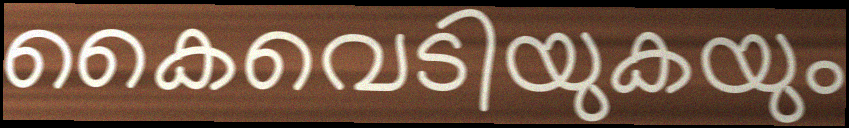
കൈവെടിയുകയും